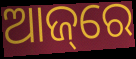
ଆଜ୍‌ରେ